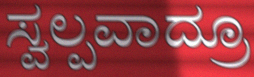
ಸ್ವಲ್ಪವಾದ್ರೂ